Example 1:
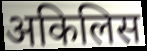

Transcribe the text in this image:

अकिलिस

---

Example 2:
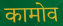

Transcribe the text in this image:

कामोव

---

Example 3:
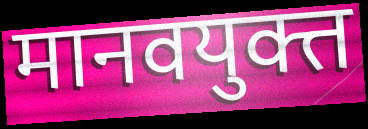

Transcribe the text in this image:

मानवयुक्त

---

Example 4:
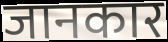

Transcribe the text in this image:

जानकार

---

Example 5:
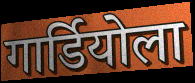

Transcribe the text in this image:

गार्डियोला